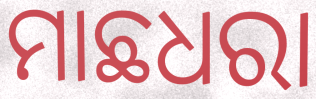
ମାଛଧରା